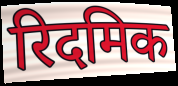
रिदमिक